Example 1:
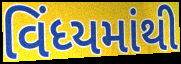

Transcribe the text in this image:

વિંધ્યમાંથી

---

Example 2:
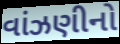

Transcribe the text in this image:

વાંઝણીનો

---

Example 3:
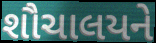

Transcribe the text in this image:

શૌચાલયને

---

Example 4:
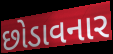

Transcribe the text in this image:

છોડાવનાર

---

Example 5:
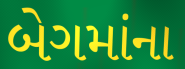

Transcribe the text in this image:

બેગમાંના